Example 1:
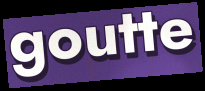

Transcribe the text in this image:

goutte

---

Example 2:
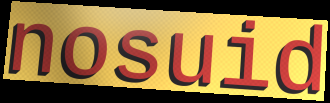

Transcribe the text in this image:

nosuid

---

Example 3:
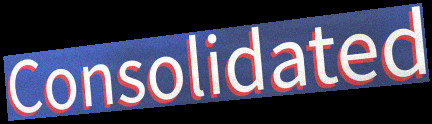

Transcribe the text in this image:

Consolidated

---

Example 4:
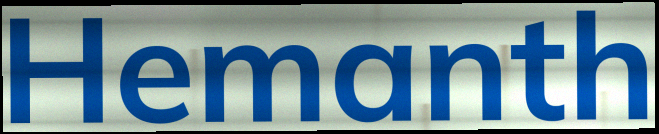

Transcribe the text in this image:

Hemanth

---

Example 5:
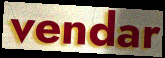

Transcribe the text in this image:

vendar